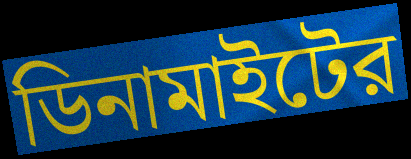
ডিনামাইটের